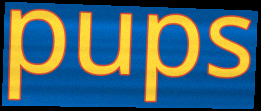
pups